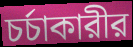
চর্চাকারীর